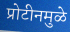
प्रोटीनमुळे